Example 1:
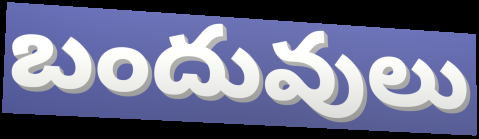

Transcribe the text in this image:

బందువులు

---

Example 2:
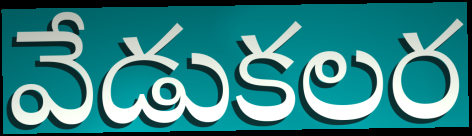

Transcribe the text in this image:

వేడుకలర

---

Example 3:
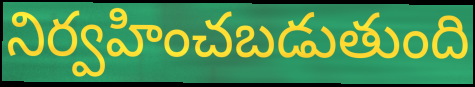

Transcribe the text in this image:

నిర్వహించబడుతుంది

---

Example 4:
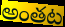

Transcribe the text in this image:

అంతట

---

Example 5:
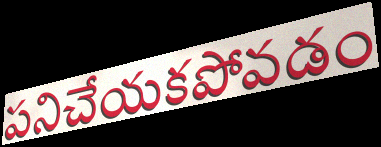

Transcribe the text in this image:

పనిచేయకపోవడం